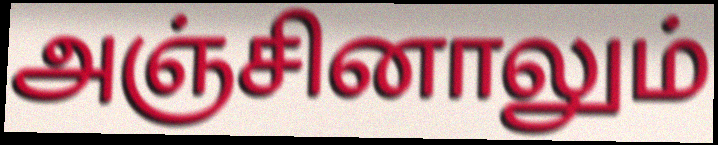
அஞ்சினாலும்